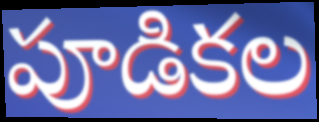
పూడికల